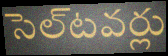
సెల్‌టవర్లు